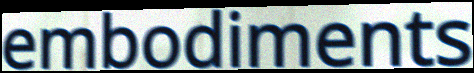
embodiments